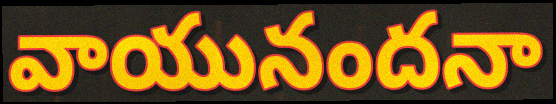
వాయునందనా